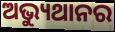
ଅଭ୍ୟୁଥାନର